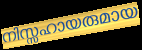
നിസ്സഹായരുമായ